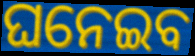
ଘନେଇବ